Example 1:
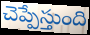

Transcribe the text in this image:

చెప్పేస్తుంది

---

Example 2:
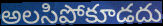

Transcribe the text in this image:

అలసిపోకూడదు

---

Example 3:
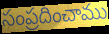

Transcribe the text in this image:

సంప్రదించాము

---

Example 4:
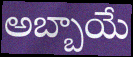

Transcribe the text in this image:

అబ్బాయే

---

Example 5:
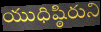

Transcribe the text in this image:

యుధిష్ఠిరుని